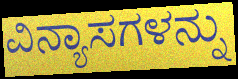
ವಿನ್ಯಾಸಗಳನ್ನು